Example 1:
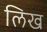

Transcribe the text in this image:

लिख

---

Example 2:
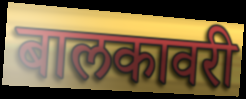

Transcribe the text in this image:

बालकावरी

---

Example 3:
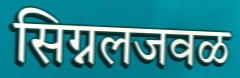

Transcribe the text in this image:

सिग्नलजवळ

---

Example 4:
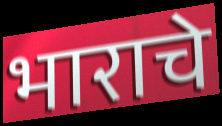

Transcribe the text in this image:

भाराचे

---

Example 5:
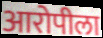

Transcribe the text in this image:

आरोपीला